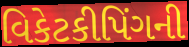
વિકેટકીપિંગની